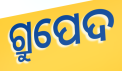
ଗ୍ରୁପେଦ